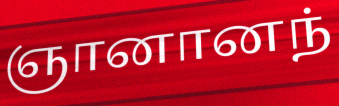
ஞானானந்